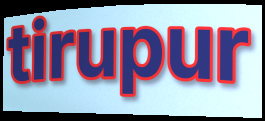
tirupur